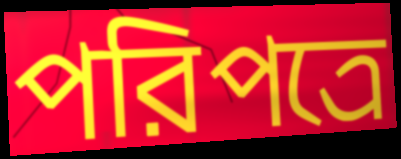
পরিপত্রে